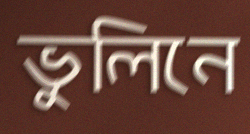
ভুলিনে